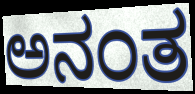
ಅನಂತ